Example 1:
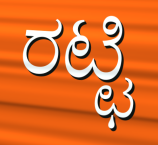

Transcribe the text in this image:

ರಟ್ಟಿ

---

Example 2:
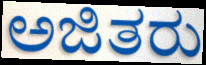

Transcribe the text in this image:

ಅಜಿತರು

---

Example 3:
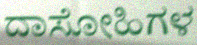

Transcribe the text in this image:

ದಾಸೋಹಿಗಳ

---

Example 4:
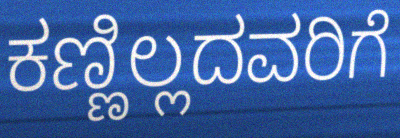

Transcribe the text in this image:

ಕಣ್ಣಿಲ್ಲದವರಿಗೆ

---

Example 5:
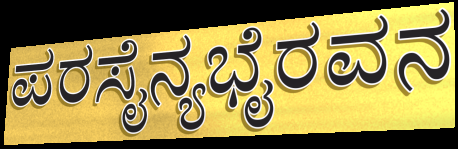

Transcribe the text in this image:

ಪರಸೈನ್ಯಭೈರವನ